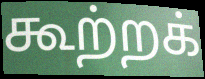
கூற்றக்